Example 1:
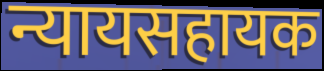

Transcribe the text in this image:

न्यायसहायक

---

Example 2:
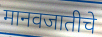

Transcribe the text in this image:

मानवजातीचे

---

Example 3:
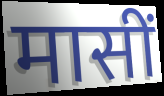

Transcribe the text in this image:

मासीं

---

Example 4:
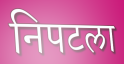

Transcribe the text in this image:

निपटला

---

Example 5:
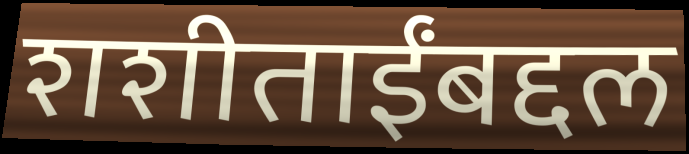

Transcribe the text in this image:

शशीताईंबद्दल